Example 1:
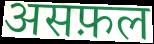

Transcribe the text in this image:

असफ़ल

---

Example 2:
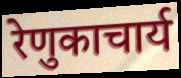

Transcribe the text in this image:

रेणुकाचार्य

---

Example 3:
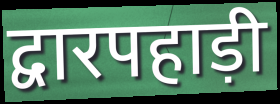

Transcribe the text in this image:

द्वारपहाड़ी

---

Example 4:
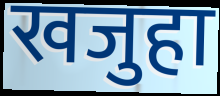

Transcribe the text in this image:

खजुहा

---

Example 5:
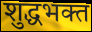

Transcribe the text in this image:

शुद्धभक्त